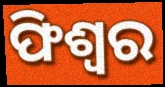
ଫିଶ୍ୱର